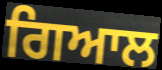
ਗਿਆਲ